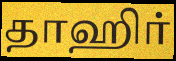
தாஹிர்